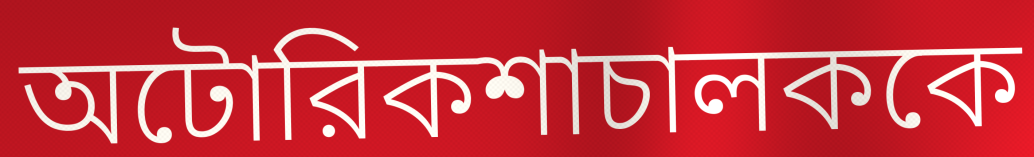
অটোরিকশাচালককে